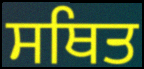
ਸਥਿਤ